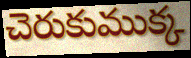
చెరుకుముక్క